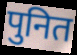
पुनित